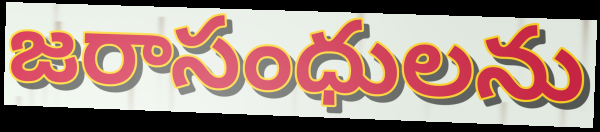
జరాసంధులను